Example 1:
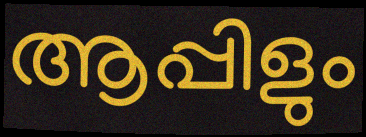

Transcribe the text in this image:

ആപ്പിളും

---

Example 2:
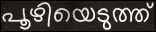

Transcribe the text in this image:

പൂഴിയെടുത്ത്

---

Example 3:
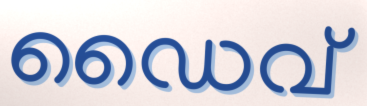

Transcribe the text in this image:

ഡൈവ്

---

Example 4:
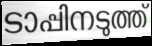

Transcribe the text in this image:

ടാപ്പിനടുത്ത്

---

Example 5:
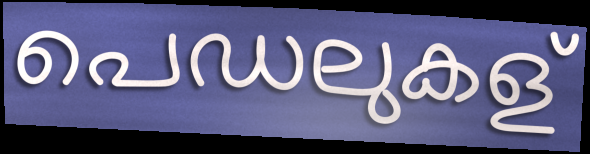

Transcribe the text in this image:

പെഡലുകള്